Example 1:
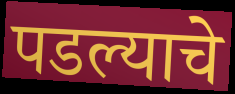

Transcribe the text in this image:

पडल्याचे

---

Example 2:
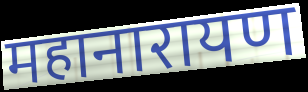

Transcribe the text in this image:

महानारायण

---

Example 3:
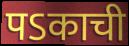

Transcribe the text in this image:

पऽकाची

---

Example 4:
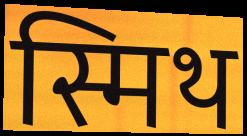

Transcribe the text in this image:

स्मिथ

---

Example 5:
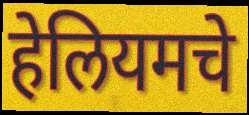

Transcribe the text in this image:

हेलियमचे